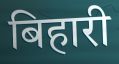
बिहारी